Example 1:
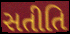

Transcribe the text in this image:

સતીતિ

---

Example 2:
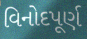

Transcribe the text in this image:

વિનોદપૂર્ણ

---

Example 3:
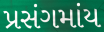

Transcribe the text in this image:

પ્રસંગમાંય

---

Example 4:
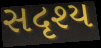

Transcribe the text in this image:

સદૃશ્ય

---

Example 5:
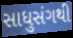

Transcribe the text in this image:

સાધુસંગથી